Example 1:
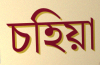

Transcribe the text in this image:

চহিয়া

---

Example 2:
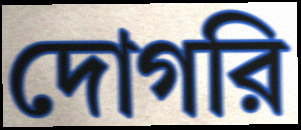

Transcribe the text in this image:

দোগরি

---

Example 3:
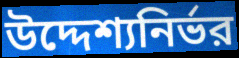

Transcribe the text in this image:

উদ্দেশ্যনির্ভর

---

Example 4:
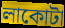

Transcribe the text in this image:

লাকোটা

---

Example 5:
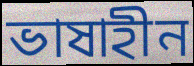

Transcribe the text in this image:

ভাষাহীন